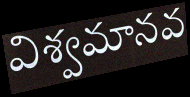
విశ్వమానవ